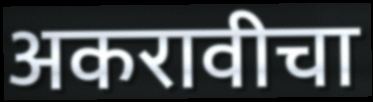
अकरावीचा